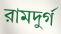
রামদুর্গ